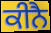
ਕੀਨੈ